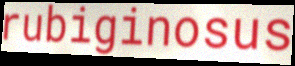
rubiginosus